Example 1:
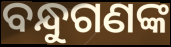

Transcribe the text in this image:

ବନ୍ଧୁଗଣଙ୍କ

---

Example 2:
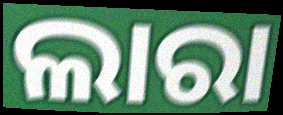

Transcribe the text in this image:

ଲାରା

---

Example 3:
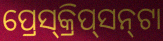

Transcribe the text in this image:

ପ୍ରେସ୍‌କ୍ରିପ୍‌ସନ୍‌ଟା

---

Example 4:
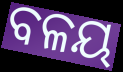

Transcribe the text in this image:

ବଳୟ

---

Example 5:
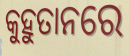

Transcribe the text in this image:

କୁହୁତାନରେ